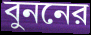
বুননের